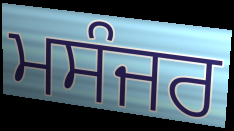
ਮਸੰਜਰ